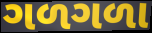
ગળગળા